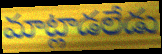
మాట్లాడలేడు